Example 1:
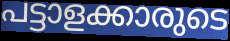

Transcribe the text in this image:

പട്ടാളക്കാരുടെ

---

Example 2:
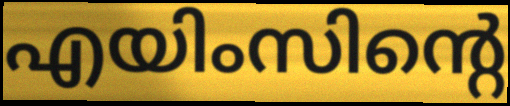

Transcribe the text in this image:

എയിംസിന്റെ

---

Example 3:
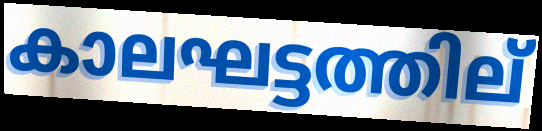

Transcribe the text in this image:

കാലഘട്ടത്തില്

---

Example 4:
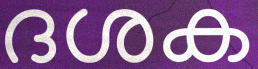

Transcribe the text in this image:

ദശക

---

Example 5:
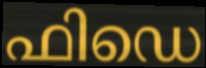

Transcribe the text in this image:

ഫിഡെ